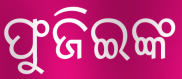
ଫୁଜିଇଙ୍କ